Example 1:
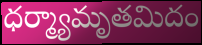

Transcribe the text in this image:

ధర్మ్యామృతమిదం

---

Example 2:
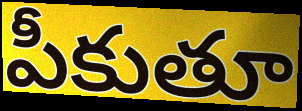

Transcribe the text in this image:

పీకుతూ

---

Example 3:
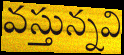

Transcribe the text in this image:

వస్తున్నవి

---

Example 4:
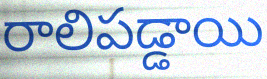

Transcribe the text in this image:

రాలిపడ్డాయి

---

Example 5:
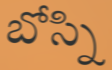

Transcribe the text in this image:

బోస్ని